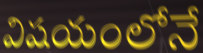
విషయంలోనే